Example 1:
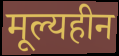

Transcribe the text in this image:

मूल्यहीन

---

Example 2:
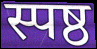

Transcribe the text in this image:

स्पष्ठ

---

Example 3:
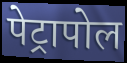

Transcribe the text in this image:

पेट्रापोल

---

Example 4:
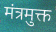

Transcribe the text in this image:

मंत्रमुक्त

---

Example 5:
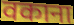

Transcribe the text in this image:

वकाना